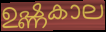
ഉഷ്ണകാല